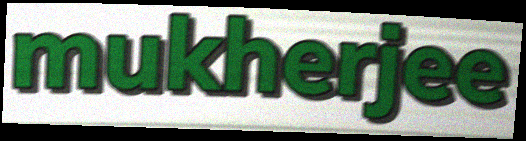
mukherjee